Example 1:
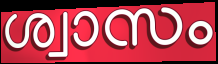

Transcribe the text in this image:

ശ്വാസം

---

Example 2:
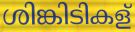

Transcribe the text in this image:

ശിങ്കിടികള്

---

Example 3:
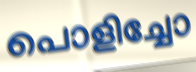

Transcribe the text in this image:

പൊളിച്ചോ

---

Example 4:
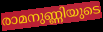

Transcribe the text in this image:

രാമനുണ്ണിയുടെ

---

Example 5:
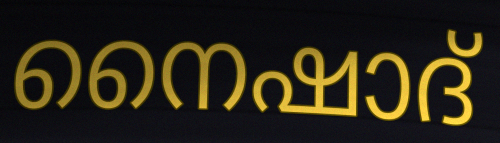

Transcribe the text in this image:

നൈഷാദ്